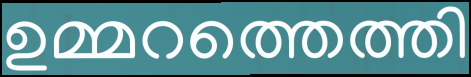
ഉമ്മറത്തെത്തി